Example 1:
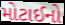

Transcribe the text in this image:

મોટાઈનો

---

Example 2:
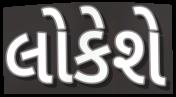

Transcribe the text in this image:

લોકેશે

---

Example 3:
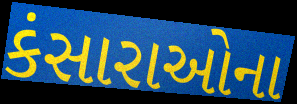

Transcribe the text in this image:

કંસારાઓના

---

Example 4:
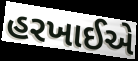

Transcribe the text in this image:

હરખાઈએ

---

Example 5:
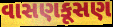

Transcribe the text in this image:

વાસણકૂસણ